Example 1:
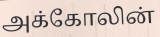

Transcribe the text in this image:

அக்கோலின்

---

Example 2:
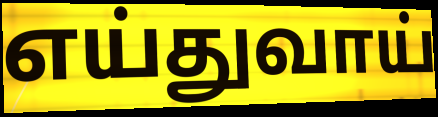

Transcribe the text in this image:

எய்துவாய்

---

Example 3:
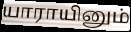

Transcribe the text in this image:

யாராயினும்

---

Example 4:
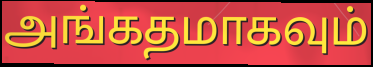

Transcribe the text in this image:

அங்கதமாகவும்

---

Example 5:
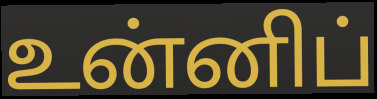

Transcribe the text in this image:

உன்னிப்